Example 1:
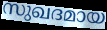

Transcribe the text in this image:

സുഖദമായ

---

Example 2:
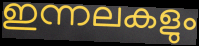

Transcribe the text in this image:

ഇന്നലകളും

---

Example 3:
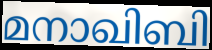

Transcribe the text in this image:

മനാഖിബി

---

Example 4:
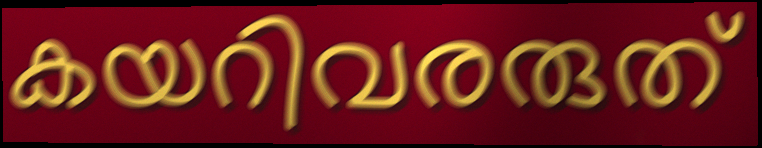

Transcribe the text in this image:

കയറിവരരുത്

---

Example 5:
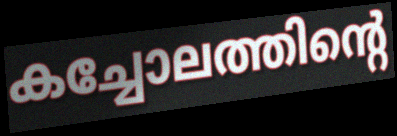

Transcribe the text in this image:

കച്ചോലത്തിന്റെ